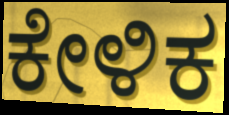
ಕೇಳಿಕ